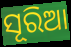
ସୂରିଆ